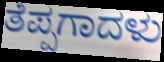
ತೆಪ್ಪಗಾದಳು